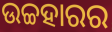
ଉଚ୍ଚହାରର